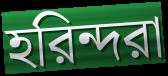
হরিন্দরা